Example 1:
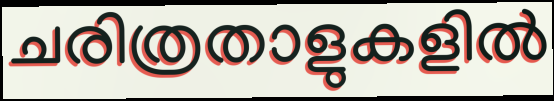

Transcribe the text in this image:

ചരിത്രതാളുകളിൽ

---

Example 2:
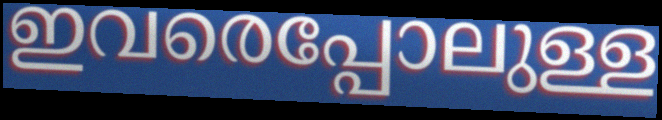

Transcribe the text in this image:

ഇവരെപ്പോലുള്ള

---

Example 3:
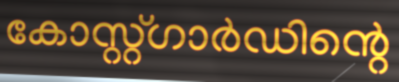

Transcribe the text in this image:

കോസ്റ്റ്ഗാർഡിന്റെ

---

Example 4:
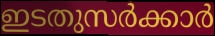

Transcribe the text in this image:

ഇടതുസർക്കാർ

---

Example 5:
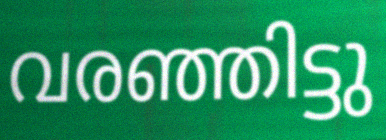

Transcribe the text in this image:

വരഞ്ഞിട്ടു